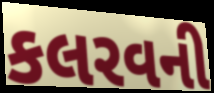
કલરવની